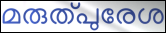
മരുത്പുരേശ